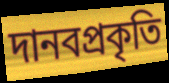
দানবপ্রকৃতি